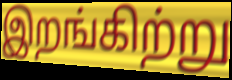
இறங்கிற்று